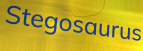
Stegosaurus